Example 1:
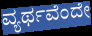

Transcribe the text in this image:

ವ್ಯರ್ಥವೆಂದೇ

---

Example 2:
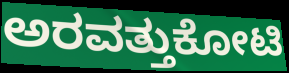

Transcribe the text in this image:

ಅರವತ್ತುಕೋಟಿ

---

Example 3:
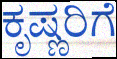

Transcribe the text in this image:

ಕೃಷ್ಣರಿಗೆ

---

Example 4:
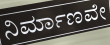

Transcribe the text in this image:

ನಿರ್ಮಾಣವೇ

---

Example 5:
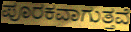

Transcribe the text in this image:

ಪೂರಕವಾಗುತ್ತವೆ